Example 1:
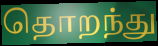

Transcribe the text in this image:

தொறந்து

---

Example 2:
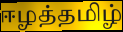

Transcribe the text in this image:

ஈழத்தமிழ்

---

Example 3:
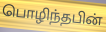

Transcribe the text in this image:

பொழிந்தபின்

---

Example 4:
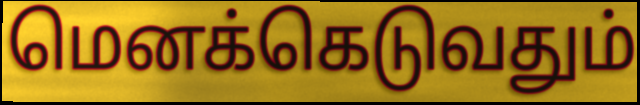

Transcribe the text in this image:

மெனக்கெடுவதும்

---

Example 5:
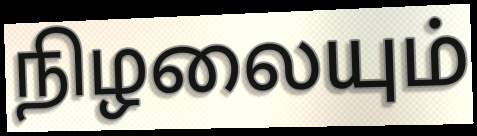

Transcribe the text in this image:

நிழலையும்